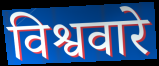
विश्ववारे